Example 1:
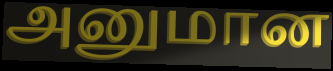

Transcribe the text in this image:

அனுமான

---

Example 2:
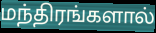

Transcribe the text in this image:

மந்திரங்களால்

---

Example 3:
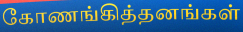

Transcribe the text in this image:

கோணங்கித்தனங்கள்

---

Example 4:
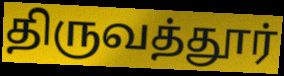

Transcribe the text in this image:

திருவத்தூர்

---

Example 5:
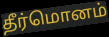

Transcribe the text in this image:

தீர்மொனம்